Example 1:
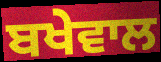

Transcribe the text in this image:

ਬਖੇਵਾਲ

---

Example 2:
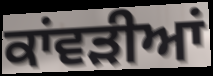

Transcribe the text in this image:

ਕਾਂਵੜੀਆਂ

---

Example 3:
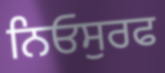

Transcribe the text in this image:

ਨਿਓਸੁਰਫ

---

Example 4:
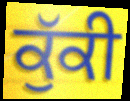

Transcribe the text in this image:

ਕੁੱਕੀ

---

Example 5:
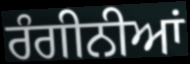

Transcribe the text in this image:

ਰੰਗੀਨੀਆਂ